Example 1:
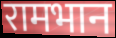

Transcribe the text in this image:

रामभान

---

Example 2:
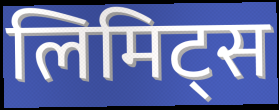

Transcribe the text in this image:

लिमिट्स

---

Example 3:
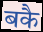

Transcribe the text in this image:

बकै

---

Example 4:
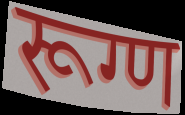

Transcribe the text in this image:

रूग्ण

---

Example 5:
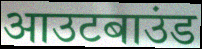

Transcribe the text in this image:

आउटबाउंड